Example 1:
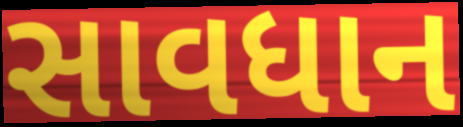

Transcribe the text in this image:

સાવધાન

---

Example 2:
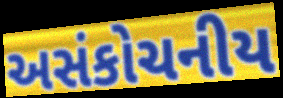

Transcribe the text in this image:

અસંકોચનીય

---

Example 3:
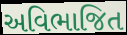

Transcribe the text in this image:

અવિભાજિત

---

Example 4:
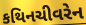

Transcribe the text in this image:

કથિનચીવરેન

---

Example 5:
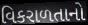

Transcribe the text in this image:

વિકરાળતાનો